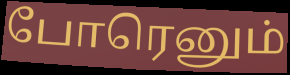
போரெனும்